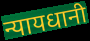
न्यायधानी